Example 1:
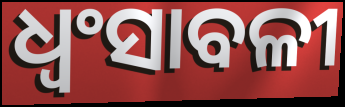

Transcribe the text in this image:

ଧ୍ୱଂସାବଳୀ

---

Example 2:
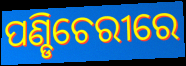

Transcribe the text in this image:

ପଣ୍ଡିଚେରୀରେ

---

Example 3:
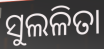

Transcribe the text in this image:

ସୁଲଳିତା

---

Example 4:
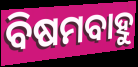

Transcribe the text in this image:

ବିଷମବାହୁ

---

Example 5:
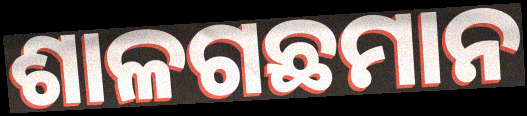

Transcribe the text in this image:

ଶାଳଗଛମାନ